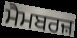
ਮੈਮਬਰਜ਼